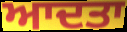
ਆਦਤਾ